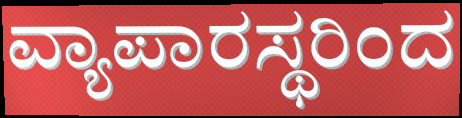
ವ್ಯಾಪಾರಸ್ಥರಿಂದ